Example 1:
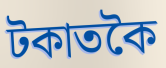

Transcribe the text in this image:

টকাতকৈ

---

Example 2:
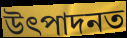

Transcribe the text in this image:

উৎপাদনত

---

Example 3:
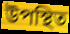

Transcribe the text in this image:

উপস্থিত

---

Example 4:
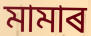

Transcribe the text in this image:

মামাৰ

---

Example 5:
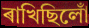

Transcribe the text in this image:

ৰাখিছিলোঁ